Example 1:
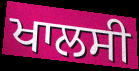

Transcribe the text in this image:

ਖਾਲਸੀ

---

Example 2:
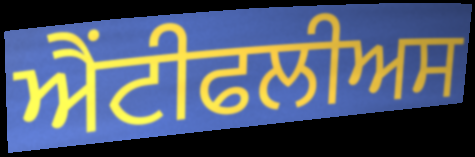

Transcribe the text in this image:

ਐਂਟੀਫਲੀਅਸ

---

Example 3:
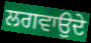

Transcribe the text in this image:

ਲਗਵਾਉਦੇ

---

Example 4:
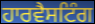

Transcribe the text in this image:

ਹਾਰਵੈਸਟਿੰਗ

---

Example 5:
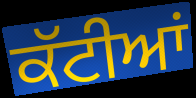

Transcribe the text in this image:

ਕੱਟੀਆਂ